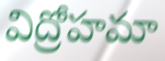
విద్రోహమా